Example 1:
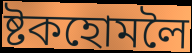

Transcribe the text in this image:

ষ্টকহোমলৈ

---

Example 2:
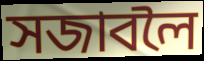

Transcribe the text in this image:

সজাবলৈ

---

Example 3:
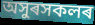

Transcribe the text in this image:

অসুৰসকলৰ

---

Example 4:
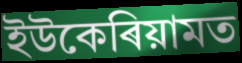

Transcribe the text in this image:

ইউকেৰিয়ামত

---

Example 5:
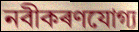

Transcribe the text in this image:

নবীকৰণযোগ্য